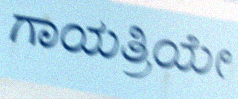
ಗಾಯತ್ರಿಯೇ